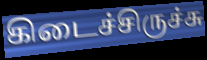
கிடைச்சிருச்சு